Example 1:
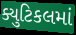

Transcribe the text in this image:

ક્યુટિકલમાં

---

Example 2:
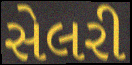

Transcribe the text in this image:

સેલરી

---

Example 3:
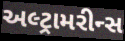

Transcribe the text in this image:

અલ્ટ્રામરીન્સ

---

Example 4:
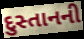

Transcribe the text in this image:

દુસ્તાનની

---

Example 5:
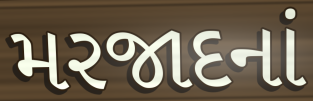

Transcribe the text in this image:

મરજાદનાં